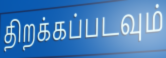
திறக்கப்படவும்